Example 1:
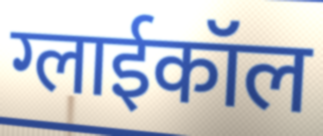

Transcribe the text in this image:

ग्लाईकॉल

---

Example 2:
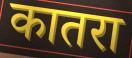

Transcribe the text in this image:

कातरा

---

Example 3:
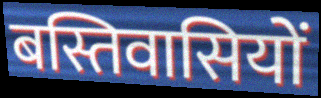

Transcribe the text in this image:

बस्तिवासियों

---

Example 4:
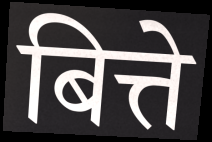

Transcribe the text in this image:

बित्ते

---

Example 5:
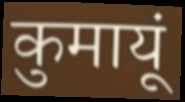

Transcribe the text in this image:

कुमायूं